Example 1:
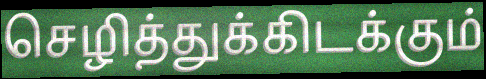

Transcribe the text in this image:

செழித்துக்கிடக்கும்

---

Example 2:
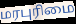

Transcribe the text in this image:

மரபுரிமை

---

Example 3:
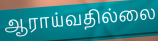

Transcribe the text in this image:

ஆராய்வதில்லை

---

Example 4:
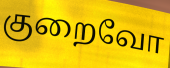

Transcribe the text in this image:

குறைவோ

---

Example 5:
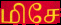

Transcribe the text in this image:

மிசே